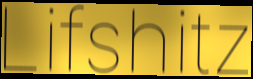
Lifshitz